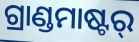
ଗ୍ରାଣ୍ଡମାଷ୍ଟର୍